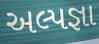
અલ્પજ્ઞા